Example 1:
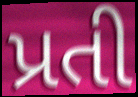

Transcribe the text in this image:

પ્રતી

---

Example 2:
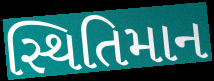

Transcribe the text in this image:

સ્થિતિમાન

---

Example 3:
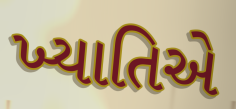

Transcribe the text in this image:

ખ્યાતિએ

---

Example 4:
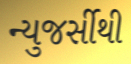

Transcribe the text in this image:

ન્યુજર્સીથી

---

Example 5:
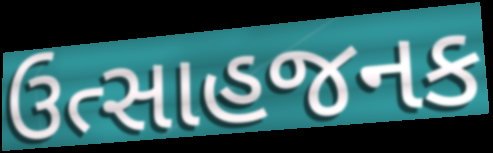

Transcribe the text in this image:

ઉત્સાહજનક